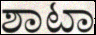
ಶಾಟಾ